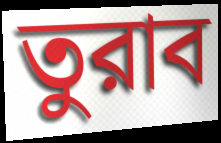
তুরাব